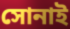
সোনাই